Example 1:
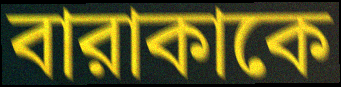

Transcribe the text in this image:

বারাকাকে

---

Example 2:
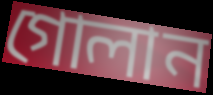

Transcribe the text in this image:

গোলান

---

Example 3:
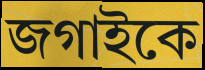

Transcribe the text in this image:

জগাইকে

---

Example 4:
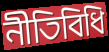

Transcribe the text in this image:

নীতিবিধি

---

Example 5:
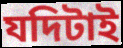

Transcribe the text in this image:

যদিটাই